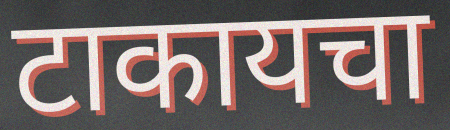
टाकायचा